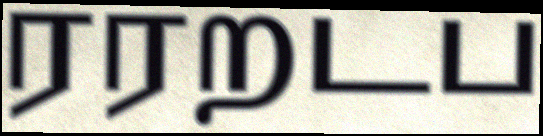
ரரறடப